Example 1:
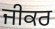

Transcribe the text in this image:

ਜੀਕਰ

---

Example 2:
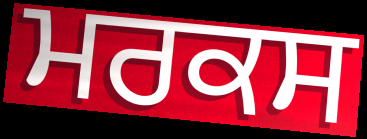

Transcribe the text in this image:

ਮਰਕਸ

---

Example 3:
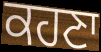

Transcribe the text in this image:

ਕਹਣਾ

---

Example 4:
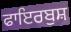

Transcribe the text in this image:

ਫਾਇਰਬੁਸ਼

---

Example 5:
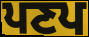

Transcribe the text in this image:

ਪਣਪ